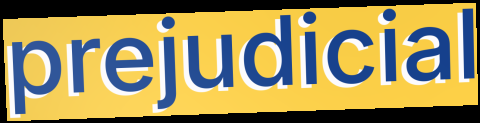
prejudicial